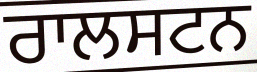
ਰਾਲਸਟਨ